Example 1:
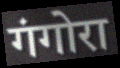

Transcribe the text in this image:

गंगोरा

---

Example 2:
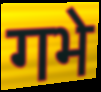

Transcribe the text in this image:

गभे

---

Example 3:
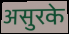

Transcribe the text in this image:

असुरके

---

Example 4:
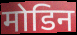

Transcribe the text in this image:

मोडिन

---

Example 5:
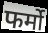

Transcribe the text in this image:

फर्मो